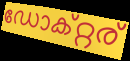
ഡോക്റ്റര്